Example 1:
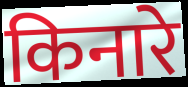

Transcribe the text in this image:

किनारे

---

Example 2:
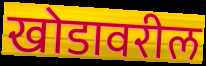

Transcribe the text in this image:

खोडावरील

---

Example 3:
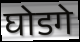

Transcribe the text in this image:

घोडगे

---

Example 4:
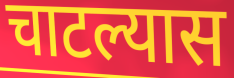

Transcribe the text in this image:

चाटल्यास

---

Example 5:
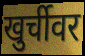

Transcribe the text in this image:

खुर्चीवर